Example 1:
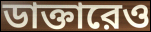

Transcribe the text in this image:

ডাক্তারেও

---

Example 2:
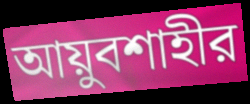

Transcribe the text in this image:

আয়ুবশাহীর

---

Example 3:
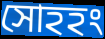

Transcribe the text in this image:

সোহহং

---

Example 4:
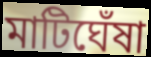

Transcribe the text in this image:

মাটিঘেঁষা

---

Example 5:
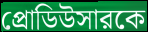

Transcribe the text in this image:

প্রোডিউসারকে